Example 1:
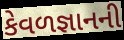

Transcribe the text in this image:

કેવળજ્ઞાનની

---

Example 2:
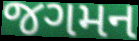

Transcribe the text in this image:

જગમન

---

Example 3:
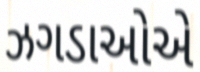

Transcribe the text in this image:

ઝગડાઓએ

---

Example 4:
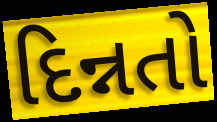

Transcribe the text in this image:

દિન્નતો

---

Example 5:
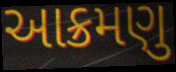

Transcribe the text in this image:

આક્રમણુ